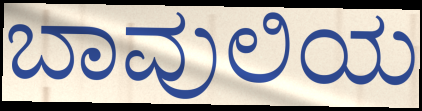
ಬಾವುಲಿಯ